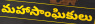
మహాసాంఘికులు